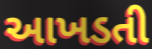
આખડતી